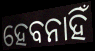
ହେବନାହିଁ